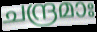
ചന്ദ്രമാഃ